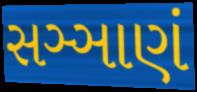
સઞ્ઞાણં